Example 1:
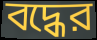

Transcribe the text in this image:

বদ্ধের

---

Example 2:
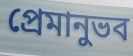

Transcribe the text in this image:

প্রেমানুভব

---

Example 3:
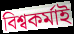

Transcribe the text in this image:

বিশ্বকর্মাই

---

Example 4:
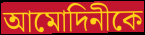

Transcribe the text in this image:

আমোদিনীকে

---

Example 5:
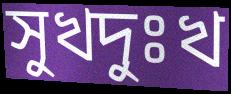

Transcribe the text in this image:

সুখদুঃখ